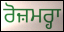
ਰੋਜ਼ਮਰ੍ਹਾ